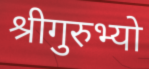
श्रीगुरुभ्यो